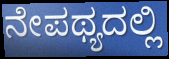
ನೇಪಥ್ಯದಲ್ಲಿ